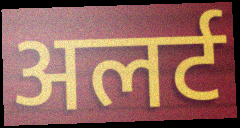
अलर्ट